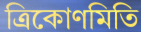
ত্ৰিকোণমিতি